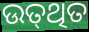
ଉତ୍‍ଥିତ